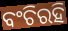
ବଂଚିରହି